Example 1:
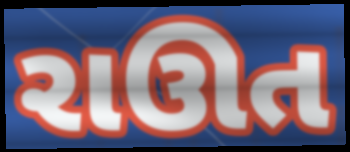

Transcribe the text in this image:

રાઊત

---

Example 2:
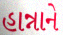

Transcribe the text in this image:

હાન્નાને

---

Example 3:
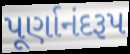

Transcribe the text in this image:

પૂર્ણાનંદરૂપ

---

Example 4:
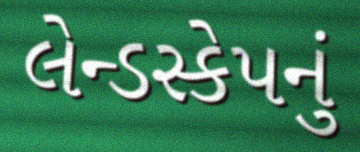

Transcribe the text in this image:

લેન્ડસ્કેપનું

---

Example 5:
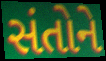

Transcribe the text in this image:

સંતોને